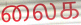
லைக